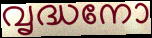
വൃദ്ധനോ